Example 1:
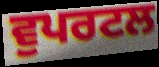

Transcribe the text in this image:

ਵੁਪਰਟਲ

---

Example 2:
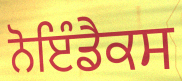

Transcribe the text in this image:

ਨੋਇੰਡੈਕਸ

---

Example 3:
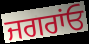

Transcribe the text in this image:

ਜਗਰਾਂਓ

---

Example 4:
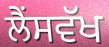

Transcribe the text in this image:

ਲੈਂਸਵੱਖ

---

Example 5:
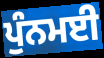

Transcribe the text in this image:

ਪੁੰਨਮਈ